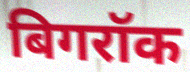
बिगरॉक